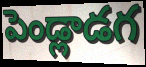
పెండ్లాడగ